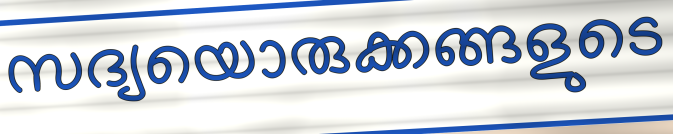
സദ്യയൊരുക്കങ്ങളുടെ